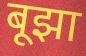
बूझा